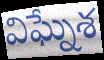
విఘ్నేశ